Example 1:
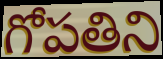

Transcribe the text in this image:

గోపతిని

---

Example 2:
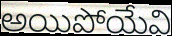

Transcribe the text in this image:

అయిపోయేవి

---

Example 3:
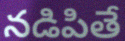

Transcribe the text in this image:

నడిపితే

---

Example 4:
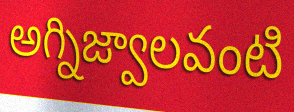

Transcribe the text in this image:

అగ్నిజ్వాలవంటి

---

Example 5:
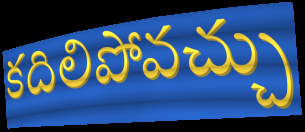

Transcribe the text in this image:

కదిలిపోవచ్చు